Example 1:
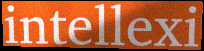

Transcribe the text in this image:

intellexi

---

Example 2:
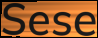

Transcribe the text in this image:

Sese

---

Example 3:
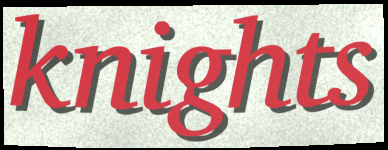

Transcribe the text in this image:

knights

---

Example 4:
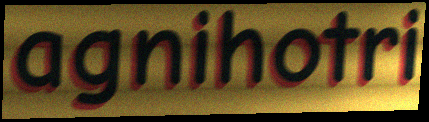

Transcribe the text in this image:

agnihotri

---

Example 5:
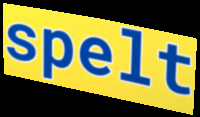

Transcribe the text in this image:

spelt